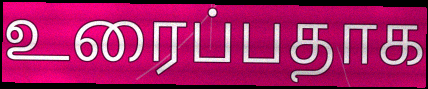
உரைப்பதாக